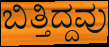
ಬಿತ್ತಿದ್ದವು